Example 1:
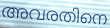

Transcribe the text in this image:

അവരതിനെ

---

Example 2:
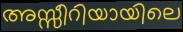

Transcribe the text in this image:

അസ്സീറിയായിലെ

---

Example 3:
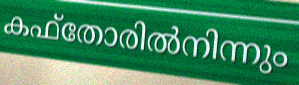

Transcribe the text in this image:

കഫ്തോരിൽനിന്നും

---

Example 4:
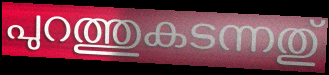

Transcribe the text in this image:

പുറത്തുകടന്നതു്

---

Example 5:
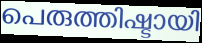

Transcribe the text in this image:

പെരുത്തിഷ്ടായി